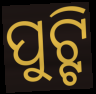
ପୁଟ୍ଟି